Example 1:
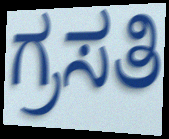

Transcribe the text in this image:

ಗ್ರಸತಿ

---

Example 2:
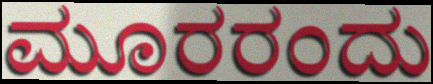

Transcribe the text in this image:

ಮೂರರಂದು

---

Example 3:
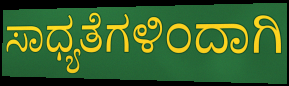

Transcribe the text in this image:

ಸಾಧ್ಯತೆಗಳಿಂದಾಗಿ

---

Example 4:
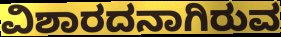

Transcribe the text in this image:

ವಿಶಾರದನಾಗಿರುವ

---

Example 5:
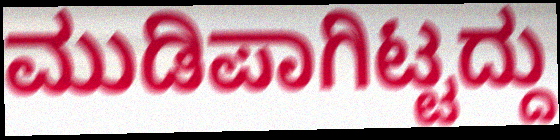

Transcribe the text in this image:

ಮುಡಿಪಾಗಿಟ್ಟದ್ದು